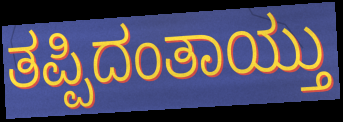
ತಪ್ಪಿದಂತಾಯ್ತು